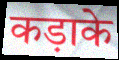
कड़ाके